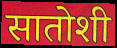
सातोशी